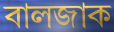
বালজাক